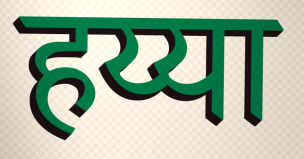
हय्या